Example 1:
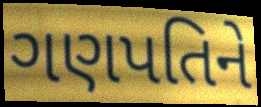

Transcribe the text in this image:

ગણપતિને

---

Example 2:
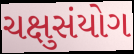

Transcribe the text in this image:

ચક્ષુસંયોગ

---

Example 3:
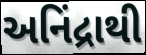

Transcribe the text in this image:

અનિંદ્રાથી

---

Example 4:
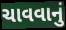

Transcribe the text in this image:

ચાવવાનું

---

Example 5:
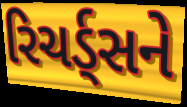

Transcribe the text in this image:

રિચર્ડ્સને